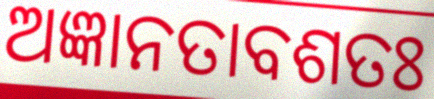
ଅଜ୍ଞାନତାବଶତଃ